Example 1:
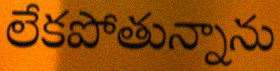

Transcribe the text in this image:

లేకపోతున్నాను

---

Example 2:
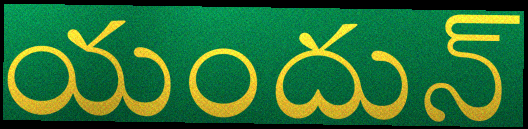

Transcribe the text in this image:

యందున్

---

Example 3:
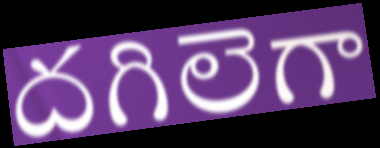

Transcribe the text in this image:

దగిలెగా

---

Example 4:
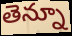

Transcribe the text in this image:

తెన్నూ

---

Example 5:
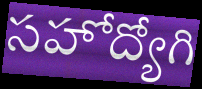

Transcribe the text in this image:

సహోద్యోగి